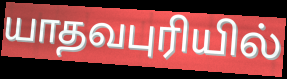
யாதவபுரியில்